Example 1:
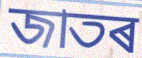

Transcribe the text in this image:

জাতৰ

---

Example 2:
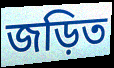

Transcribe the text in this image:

জড়িত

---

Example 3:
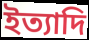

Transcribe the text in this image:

ইত্যাদি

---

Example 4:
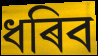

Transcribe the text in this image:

ধৰিব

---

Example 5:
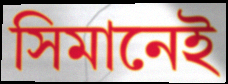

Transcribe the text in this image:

সিমানেই